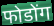
फोडोंग